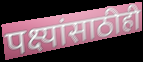
पक्ष्यांसाठीही